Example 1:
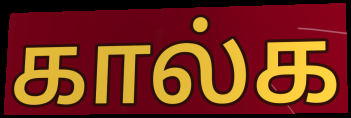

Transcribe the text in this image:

கால்க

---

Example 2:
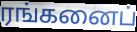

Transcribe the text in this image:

ரங்கனைப்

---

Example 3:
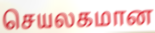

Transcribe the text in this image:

செயலகமான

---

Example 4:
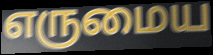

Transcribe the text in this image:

எருமைய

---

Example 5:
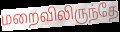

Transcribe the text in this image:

மறைவிலிருந்தே